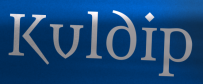
Kuldip